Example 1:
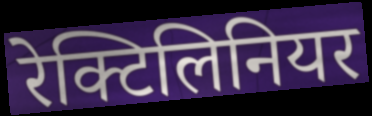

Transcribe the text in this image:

रेक्टिलिनियर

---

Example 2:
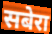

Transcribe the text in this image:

सबेरा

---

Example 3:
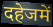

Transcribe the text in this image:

दहेजमें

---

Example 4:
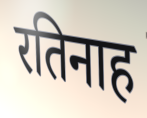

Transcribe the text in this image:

रतिनाह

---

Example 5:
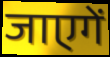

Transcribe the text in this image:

जाएगें